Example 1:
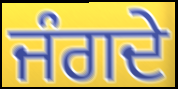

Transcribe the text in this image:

ਜੰਗਦੇ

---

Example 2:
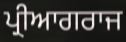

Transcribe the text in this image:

ਪ੍ਰੀਆਗਰਾਜ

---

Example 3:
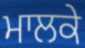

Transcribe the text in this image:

ਮਾਲਕੇ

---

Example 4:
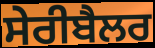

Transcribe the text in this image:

ਸੇਰੀਬੈਲਰ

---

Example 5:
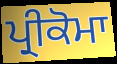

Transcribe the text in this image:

ਪ੍ਰੀਕੋਮਾ